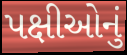
પક્ષીઓનું